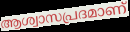
ആശ്വാസപ്രദമാണ്